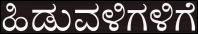
ಹಿಡುವಳಿಗಳಿಗೆ